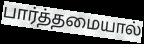
பார்த்தமையால்